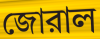
জোরাল